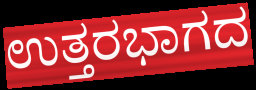
ಉತ್ತರಭಾಗದ